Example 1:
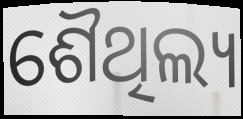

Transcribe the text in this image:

ଶୈଥିଲ୍ୟ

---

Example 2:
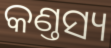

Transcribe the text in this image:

କଣ୍ତସ୍ୟ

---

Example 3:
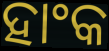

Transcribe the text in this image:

ହାଂକ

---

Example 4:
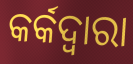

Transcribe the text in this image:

କର୍କଦ୍ଵାରା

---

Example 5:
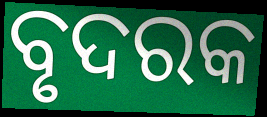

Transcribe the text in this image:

ବୃଦରକ